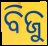
ବିଜୁ